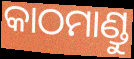
କାଠମାଣ୍ଡୁ